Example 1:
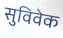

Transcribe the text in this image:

सुविवेक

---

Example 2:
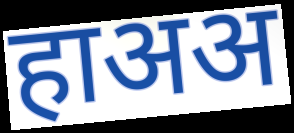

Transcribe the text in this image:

हाअअ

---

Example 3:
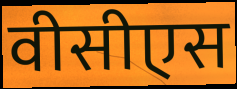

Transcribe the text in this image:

वीसीएस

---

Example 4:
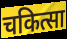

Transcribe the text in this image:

चकित्सा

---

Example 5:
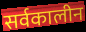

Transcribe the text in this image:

सर्वकालीन